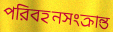
পরিবহনসংক্রান্ত